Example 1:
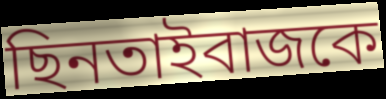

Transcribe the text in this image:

ছিনতাইবাজকে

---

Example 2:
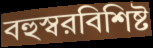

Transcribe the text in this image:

বহুস্বরবিশিষ্ট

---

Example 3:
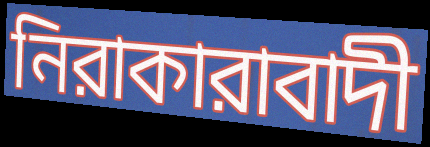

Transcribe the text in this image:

নিরাকারাবাদী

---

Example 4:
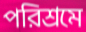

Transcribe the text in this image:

পরিশ্রমে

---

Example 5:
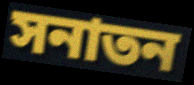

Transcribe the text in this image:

সনাতন